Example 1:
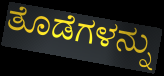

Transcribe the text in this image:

ತೊಡೆಗಳನ್ನು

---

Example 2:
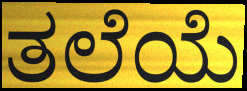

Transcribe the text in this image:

ತಲೆಯೆ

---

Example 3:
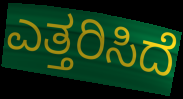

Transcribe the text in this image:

ಎತ್ತರಿಸಿದೆ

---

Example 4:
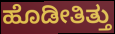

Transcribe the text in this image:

ಹೊಡೀತಿತ್ತು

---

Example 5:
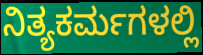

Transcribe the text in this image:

ನಿತ್ಯಕರ್ಮಗಳಲ್ಲಿ